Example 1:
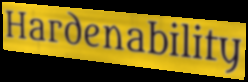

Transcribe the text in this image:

Hardenability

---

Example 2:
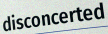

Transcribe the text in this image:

disconcerted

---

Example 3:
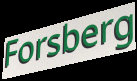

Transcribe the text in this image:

Forsberg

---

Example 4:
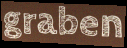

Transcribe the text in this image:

graben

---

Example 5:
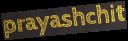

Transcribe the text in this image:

prayashchit